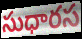
సుధారస